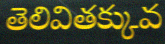
తెలివితక్కువ